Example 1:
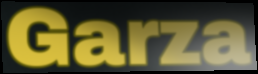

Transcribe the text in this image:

Garza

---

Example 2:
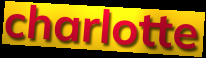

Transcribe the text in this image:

charlotte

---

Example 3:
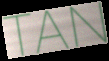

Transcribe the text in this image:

TAN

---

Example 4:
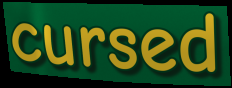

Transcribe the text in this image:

cursed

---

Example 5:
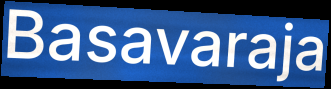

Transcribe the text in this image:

Basavaraja